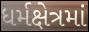
ધર્મક્ષેત્રમાં